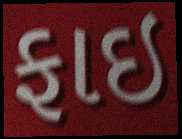
ફાઇ